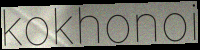
kokhonoi